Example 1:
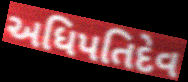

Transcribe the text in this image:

અધિપતિદેવ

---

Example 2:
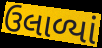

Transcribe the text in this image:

ઉલાળ્યાં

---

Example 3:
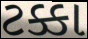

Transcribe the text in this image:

ટક્કા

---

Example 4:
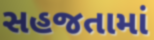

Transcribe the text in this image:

સહજતામાં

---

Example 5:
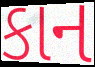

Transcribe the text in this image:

કાન